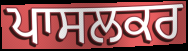
ਪਾਸਲਕਰ